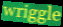
wriggle